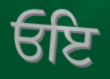
ਓਇ